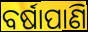
ବର୍ଷାପାଣି